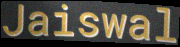
Jaiswal